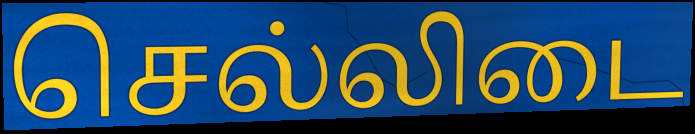
செல்லிடை